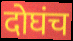
दोघंच